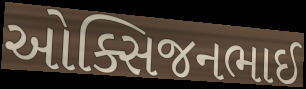
ઓક્સિજનભાઈ